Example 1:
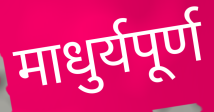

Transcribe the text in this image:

माधुर्यपूर्ण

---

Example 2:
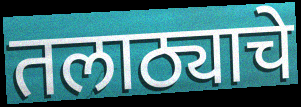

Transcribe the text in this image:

तलाठ्याचे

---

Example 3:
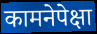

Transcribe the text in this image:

कामनेपेक्षा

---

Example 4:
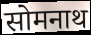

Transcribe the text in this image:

सोमनाथ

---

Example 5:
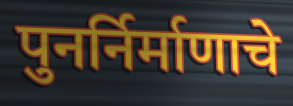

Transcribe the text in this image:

पुनर्निर्माणाचे